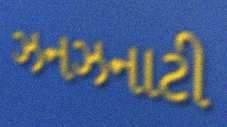
ઝનઝનાટી